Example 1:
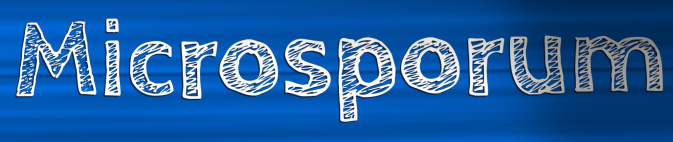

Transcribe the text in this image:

Microsporum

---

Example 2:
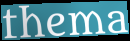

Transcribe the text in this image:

thema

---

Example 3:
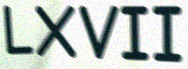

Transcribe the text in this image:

LXVII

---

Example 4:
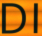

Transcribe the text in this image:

DI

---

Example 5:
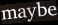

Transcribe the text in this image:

maybe